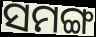
ସମଙ୍ଗ